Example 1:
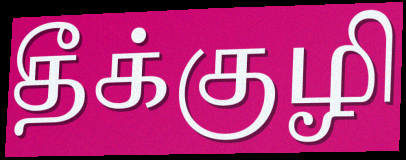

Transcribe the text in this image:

தீக்குழி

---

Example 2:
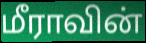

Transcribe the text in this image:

மீராவின்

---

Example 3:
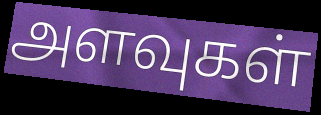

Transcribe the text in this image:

அளவுகள்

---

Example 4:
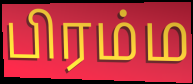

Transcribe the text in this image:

பிரம்ம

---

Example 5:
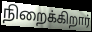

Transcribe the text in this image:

நிறைக்கிறார்